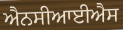
ਐਨਸੀਆਈਐਸ